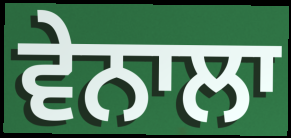
ਵੇਨਾਲਾ